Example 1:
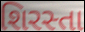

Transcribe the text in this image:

શિરસ્તા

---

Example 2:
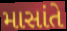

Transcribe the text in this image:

માસાંતે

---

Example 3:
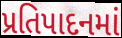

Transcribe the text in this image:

પ્રતિપાદનમાં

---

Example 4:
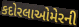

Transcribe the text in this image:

કદોરલાઓમેરની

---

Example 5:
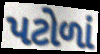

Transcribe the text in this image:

પટોળાં